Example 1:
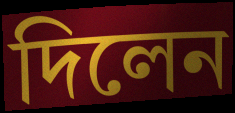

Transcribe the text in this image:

দিলেন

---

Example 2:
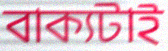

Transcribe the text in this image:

বাক্যটাই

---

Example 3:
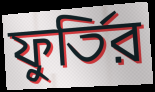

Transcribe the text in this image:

ফুর্তির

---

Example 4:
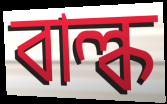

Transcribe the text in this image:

বাল্ক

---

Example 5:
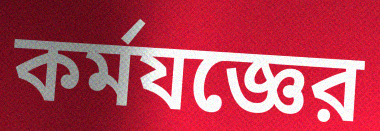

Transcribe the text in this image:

কর্মযজ্ঞের